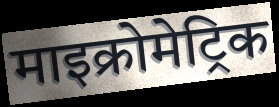
माइक्रोमेट्रिक